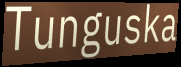
Tunguska